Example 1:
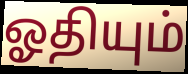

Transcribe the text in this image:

ஓதியும்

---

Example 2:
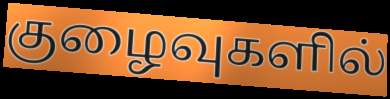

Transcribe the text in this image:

குழைவுகளில்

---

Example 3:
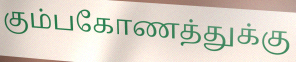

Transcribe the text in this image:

கும்பகோணத்துக்கு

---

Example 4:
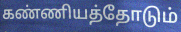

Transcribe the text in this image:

கண்ணியத்தோடும்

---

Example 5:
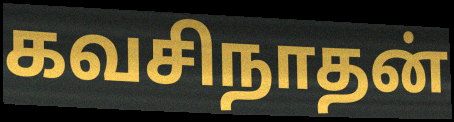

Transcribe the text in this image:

கவசிநாதன்